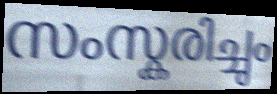
സംസ്കരിച്ചും